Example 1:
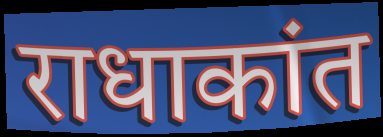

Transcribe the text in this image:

राधाकांत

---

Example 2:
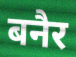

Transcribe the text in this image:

बनैर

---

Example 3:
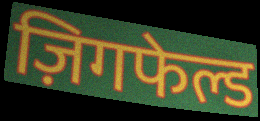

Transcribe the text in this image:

ज़िगफेल्ड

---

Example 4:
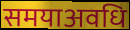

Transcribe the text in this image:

समयाअवधि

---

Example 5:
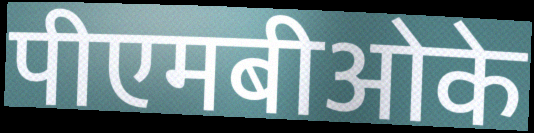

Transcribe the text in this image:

पीएमबीओके